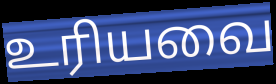
உரியவை